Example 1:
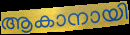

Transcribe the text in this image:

ആകാനായി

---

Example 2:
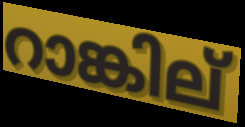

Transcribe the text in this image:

റാങ്കില്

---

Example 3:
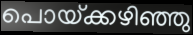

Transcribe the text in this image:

പൊയ്‌ക്കഴിഞ്ഞു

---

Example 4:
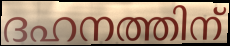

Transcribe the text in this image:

ദഹനത്തിന്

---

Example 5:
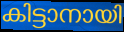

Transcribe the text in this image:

കിട്ടാനായി